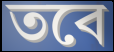
তবে